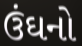
ઉંઘનો